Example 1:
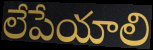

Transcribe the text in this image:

లేపేయాలి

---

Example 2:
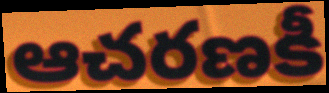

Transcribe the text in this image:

ఆచరణకీ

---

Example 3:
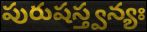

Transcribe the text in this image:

పురుషస్త్వన్యః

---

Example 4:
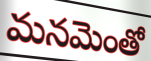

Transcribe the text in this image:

మనమెంతో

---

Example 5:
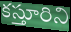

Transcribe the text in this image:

కస్తూరిని